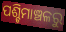
ପଶ୍ଚିମାଞ୍ଚଳରୁ